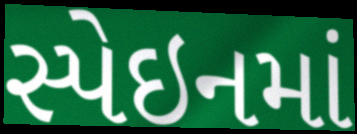
સ્પેઇનમાં